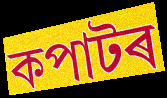
কপাটৰ